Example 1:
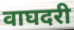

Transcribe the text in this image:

वाघदरी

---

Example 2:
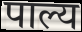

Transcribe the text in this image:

पाल्य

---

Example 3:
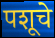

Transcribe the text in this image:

पशूचे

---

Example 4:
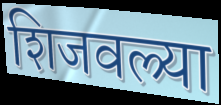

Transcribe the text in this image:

शिजवल्या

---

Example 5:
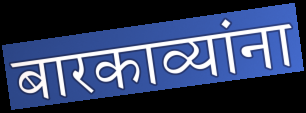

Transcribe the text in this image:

बारकाव्यांना